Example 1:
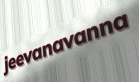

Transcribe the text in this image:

jeevanavanna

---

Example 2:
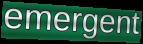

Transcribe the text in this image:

emergent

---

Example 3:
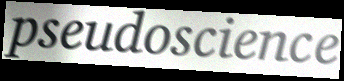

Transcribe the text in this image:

pseudoscience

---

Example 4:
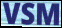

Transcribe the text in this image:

VSM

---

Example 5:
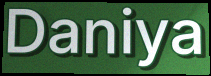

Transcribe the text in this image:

Daniya